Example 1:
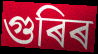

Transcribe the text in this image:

গুৰিৰ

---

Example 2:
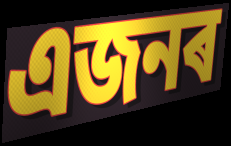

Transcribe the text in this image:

এজনৰ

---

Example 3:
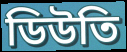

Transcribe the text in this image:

ডিউতি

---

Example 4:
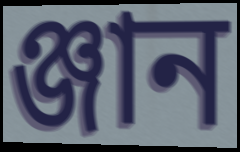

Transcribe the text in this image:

ঞ্জান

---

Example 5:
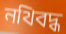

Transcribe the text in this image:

নথিবদ্ধ